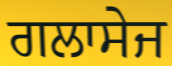
ਗਲਾਸੇਜ